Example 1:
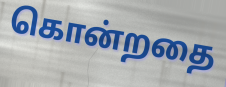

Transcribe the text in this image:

கொன்றதை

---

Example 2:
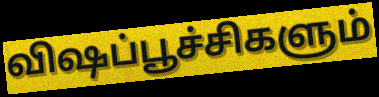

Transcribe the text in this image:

விஷப்பூச்சிகளும்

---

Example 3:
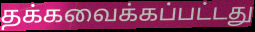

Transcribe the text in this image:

தக்கவைக்கப்பட்டது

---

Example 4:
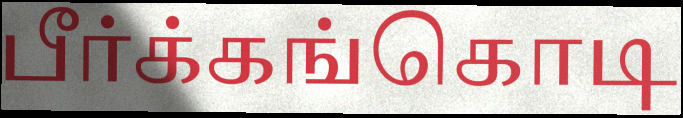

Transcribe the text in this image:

பீர்க்கங்கொடி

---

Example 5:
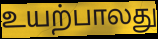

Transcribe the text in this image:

உயற்பாலது